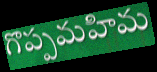
గొప్పమహిమ